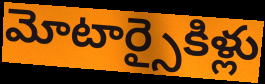
మోటార్సైకిళ్లు